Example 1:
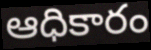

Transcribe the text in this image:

ఆధికారం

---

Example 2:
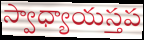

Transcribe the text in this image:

స్వాధ్యాయస్తప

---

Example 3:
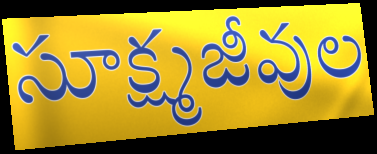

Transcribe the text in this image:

సూక్ష్మజీవుల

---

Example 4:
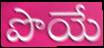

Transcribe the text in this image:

పొయే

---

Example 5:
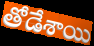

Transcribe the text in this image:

తోడేశాయి